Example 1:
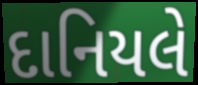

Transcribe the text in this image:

દાનિયલે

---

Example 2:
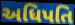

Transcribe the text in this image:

અધિપતિ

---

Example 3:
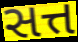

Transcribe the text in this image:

સત્ત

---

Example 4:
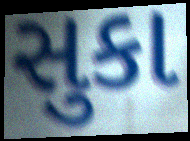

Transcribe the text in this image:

સુકા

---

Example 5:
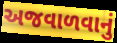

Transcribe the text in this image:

અજવાળવાનું